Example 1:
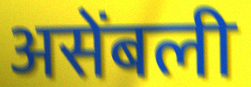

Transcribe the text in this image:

असेंबली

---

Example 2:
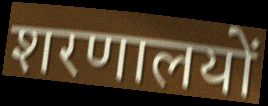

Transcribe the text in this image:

शरणालयों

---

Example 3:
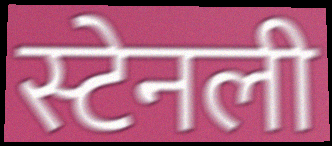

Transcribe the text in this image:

स्टेनली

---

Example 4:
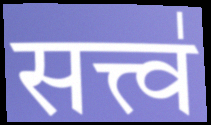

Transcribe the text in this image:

सत्त्व॑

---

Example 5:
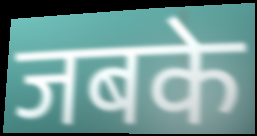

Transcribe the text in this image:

जबके